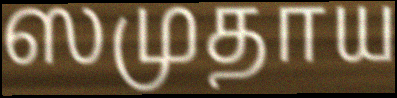
ஸமுதாய